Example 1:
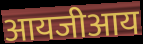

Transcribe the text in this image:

आयजीआय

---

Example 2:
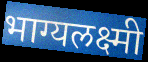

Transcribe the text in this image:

भाग्यलक्ष्मी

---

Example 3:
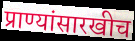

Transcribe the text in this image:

प्राण्यांसारखीच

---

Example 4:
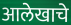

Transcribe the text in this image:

आलेखाचे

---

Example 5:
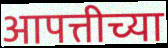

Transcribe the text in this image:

आपत्तीच्या